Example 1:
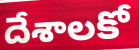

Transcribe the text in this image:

దేశాలకో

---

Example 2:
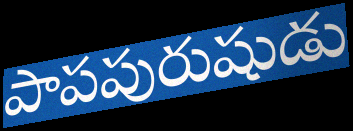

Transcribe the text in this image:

పాపపురుషుడు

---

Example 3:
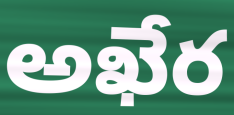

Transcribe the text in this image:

అఖేర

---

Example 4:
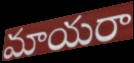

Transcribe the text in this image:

మాయరా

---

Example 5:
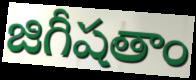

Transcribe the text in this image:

జిగీషతాం